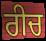
ਰੀਚ